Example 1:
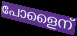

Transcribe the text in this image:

പോളൈന്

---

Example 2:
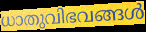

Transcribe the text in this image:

ധാതുവിഭവങ്ങൾ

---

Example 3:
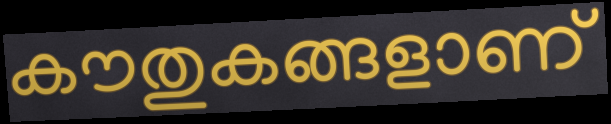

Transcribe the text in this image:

കൗതുകങ്ങളാണ്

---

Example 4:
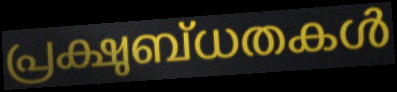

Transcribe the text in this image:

പ്രക്ഷുബ്ധതകൾ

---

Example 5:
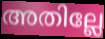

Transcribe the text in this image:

അതില്ലേ